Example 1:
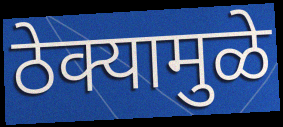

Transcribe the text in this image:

ठेक्यामुळे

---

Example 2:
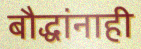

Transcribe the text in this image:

बौद्धांनाही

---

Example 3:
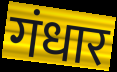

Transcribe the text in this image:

गंधार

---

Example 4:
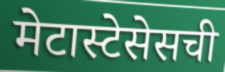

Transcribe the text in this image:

मेटास्टेसेसची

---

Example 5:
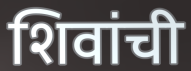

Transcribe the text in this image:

शिवांची